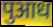
पुआध